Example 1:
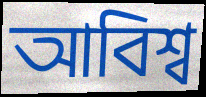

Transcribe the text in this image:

আবিশ্ব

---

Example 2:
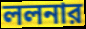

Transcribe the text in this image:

ললনার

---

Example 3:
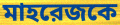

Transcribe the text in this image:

মাহরেজকে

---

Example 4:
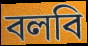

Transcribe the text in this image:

বলবি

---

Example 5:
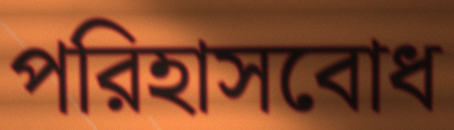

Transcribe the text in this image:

পরিহাসবোধ